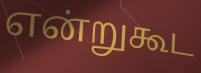
என்றுகூட